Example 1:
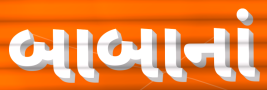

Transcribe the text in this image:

બાબાનાં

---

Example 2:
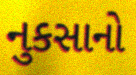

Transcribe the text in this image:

નુકસાનો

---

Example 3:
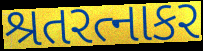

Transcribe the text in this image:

શ્રતરત્નાકર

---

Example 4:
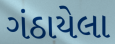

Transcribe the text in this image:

ગંઠાયેલા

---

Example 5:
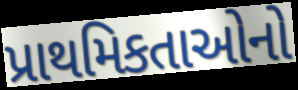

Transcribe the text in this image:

પ્રાથમિકતાઓનો